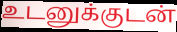
உடனுக்குடன்